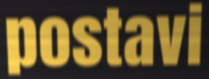
postavi